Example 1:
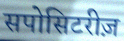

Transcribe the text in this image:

सपोसिटरीज़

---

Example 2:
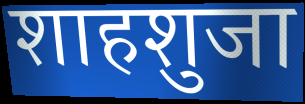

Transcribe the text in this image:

शाहशुजा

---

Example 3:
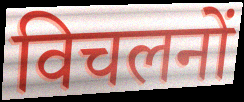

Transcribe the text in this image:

विचलनों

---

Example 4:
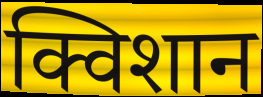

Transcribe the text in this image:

क्विशान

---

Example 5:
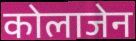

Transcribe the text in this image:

कोलाजेन